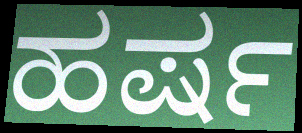
ಹರ್ಷ